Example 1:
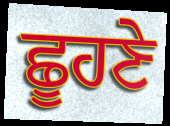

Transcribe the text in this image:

ਛੂਹਣੇ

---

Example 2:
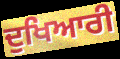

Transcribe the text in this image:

ਦੁਖਿਆਰੀ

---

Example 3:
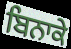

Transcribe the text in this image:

ਬਿਨਾਕੇ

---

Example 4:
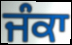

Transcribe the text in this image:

ਜੰਕਾ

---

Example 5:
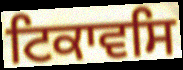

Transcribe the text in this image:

ਟਿਕਾਵਸਿ